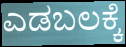
ಎಡಬಲಕ್ಕೆ